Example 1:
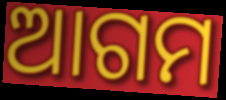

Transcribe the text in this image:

ଆଗମ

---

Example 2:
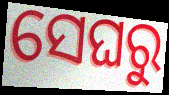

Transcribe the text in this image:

ସେଘରୁ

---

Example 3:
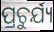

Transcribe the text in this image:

ପ୍ରଚୁର୍ଯ୍ୟ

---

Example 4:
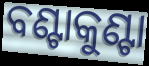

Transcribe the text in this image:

ବଣ୍ଟାକୁଣ୍ଟା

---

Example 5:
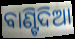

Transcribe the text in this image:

ବାଣ୍ଟିଦିଆ